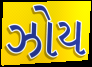
ઝોય